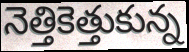
నెత్తికెత్తుకున్న